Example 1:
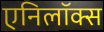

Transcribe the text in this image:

एनिलॉक्स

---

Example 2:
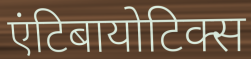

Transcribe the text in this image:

एंटिबायोटिक्स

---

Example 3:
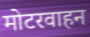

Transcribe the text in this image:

मोटरवाहन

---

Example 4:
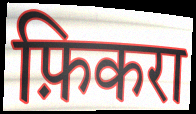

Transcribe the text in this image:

फ़िकरा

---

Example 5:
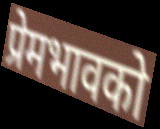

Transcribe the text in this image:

प्रेमभावको